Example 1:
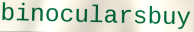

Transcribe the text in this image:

binocularsbuy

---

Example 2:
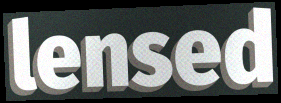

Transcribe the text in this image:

lensed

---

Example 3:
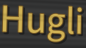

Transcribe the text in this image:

Hugli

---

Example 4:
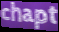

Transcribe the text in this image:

chapt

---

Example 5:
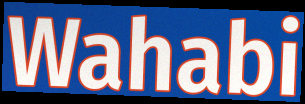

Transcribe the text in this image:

Wahabi